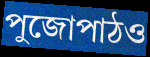
পুজোপাঠও